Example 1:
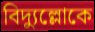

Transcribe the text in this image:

বিদ্যুল্লোকে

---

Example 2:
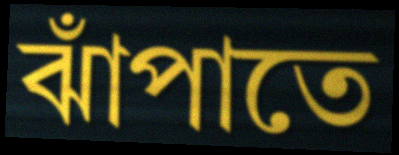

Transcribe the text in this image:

ঝাঁপাতে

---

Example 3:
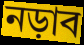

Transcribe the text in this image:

নড়াব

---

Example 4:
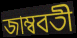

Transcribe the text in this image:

জাম্ববতী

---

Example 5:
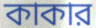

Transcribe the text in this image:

কাকার